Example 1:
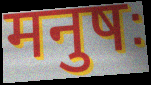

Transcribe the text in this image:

मनुषः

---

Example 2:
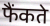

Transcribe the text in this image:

फैंकते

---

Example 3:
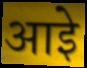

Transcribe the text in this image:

आइे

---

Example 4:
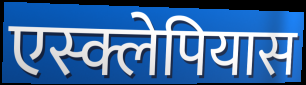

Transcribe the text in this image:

एस्क्लेपियास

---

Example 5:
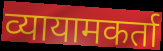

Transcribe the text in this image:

व्यायामकर्ता